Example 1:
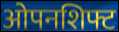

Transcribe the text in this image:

ओपनशिफ्ट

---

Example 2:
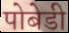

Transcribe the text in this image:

पोबेडी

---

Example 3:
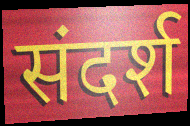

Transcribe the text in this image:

संदर्श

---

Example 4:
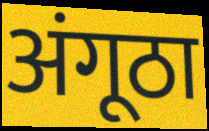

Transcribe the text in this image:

अंगूठा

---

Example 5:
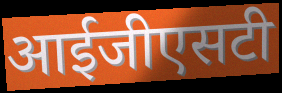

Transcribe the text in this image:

आईजीएसटी